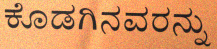
ಕೊಡಗಿನವರನ್ನು